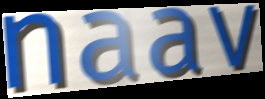
naav